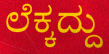
ಲೆಕ್ಕದ್ದು